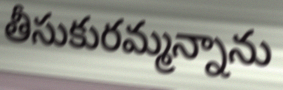
తీసుకురమ్మన్నాను